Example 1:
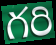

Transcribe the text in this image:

గరి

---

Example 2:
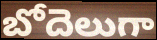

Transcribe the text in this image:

బోదెలుగా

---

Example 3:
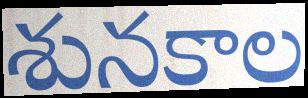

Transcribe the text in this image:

శునకాల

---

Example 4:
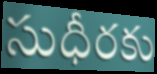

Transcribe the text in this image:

సుధీరకు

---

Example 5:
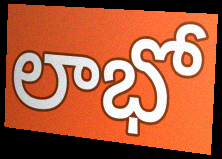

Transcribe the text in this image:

లాభో